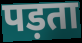
पड़ता